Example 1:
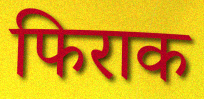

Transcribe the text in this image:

फिराक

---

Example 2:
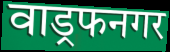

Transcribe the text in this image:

वाड्रफनगर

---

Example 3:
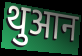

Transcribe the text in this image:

थुआन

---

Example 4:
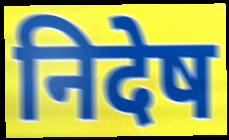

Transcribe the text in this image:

निदेष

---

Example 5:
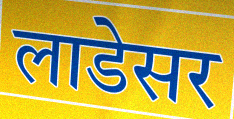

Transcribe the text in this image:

लाडेसर